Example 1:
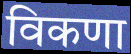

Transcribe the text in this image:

विकणा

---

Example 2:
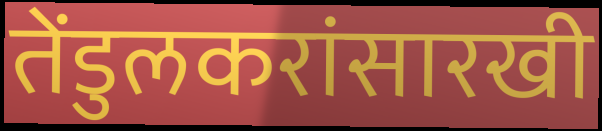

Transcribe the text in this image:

तेंडुलकरांसारखी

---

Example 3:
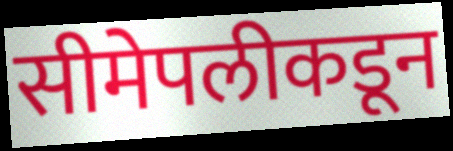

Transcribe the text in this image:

सीमेपलीकडून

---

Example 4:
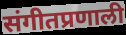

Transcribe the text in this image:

संगीतप्रणाली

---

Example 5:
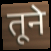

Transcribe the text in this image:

तूने